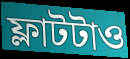
ফ্লাটটাও